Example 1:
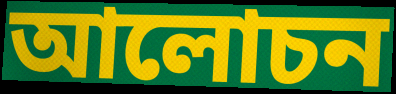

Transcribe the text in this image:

আলোচন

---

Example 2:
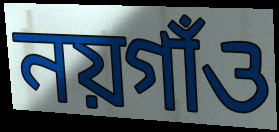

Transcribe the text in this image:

নয়গাঁও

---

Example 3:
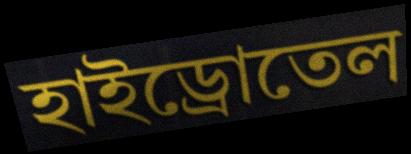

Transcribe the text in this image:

হাইড্রোতেল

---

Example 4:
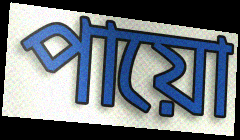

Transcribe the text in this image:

পায়ো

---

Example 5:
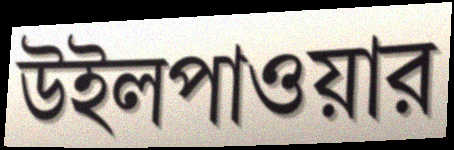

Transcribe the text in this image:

উইলপাওয়ার